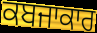
ਕਬਜਾਕਾਰ